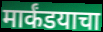
मार्कंडयाचा